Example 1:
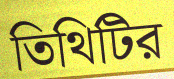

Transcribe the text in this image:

তিথিটির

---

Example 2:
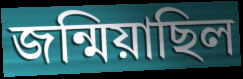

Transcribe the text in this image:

জন্মিয়াছিল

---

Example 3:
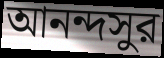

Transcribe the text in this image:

আনন্দসুর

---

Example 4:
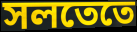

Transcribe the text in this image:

সলতেতে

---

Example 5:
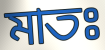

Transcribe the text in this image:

মাতঃ